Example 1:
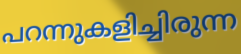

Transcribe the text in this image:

പറന്നുകളിച്ചിരുന്ന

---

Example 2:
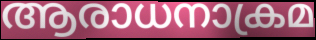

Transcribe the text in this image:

ആരാധനാക്രമ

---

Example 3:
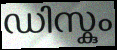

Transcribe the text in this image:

ഡിസ്കും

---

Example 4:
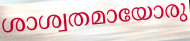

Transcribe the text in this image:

ശാശ്വതമായോരു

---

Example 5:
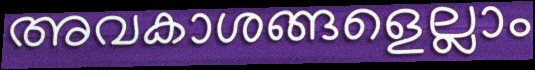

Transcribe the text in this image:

അവകാശങ്ങളെല്ലാം